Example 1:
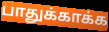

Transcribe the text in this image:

பாதுக்காக்க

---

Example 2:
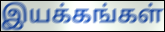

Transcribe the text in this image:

இயக்கங்கள்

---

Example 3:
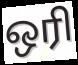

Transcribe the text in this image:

ஒரி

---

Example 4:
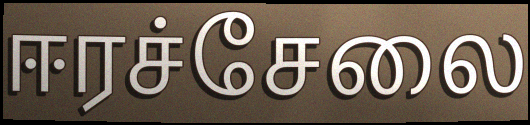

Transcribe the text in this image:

ஈரச்சேலை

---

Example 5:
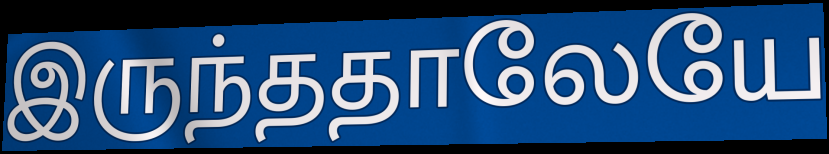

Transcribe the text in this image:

இருந்ததாலேயே